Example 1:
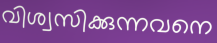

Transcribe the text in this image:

വിശ്വസിക്കുന്നവനെ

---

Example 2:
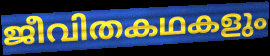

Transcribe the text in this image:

ജീവിതകഥകളും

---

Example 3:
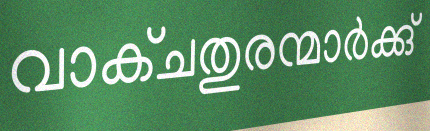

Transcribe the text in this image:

വാക്ചതുരന്മാർക്കു്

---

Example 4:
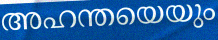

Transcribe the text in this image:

അഹന്തയെയും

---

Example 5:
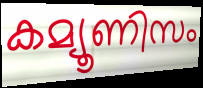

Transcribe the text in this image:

കമ്യൂണിസം